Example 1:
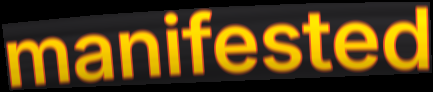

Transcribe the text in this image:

manifested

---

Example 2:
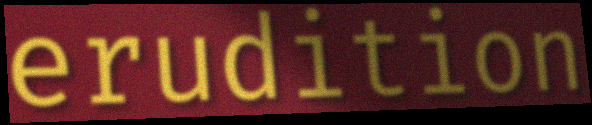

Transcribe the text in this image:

erudition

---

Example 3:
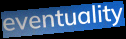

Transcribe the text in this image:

eventuality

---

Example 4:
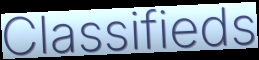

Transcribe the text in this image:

Classifieds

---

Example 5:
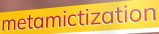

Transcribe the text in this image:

metamictization